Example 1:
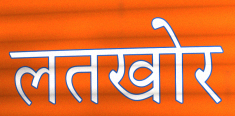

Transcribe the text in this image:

लतखोर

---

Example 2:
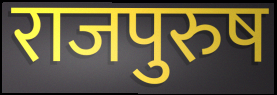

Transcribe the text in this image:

राजपुरुष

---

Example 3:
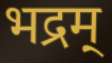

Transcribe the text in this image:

भद्रम्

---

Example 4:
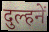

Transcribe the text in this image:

दुल्हनें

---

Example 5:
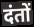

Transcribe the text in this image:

दंतों